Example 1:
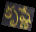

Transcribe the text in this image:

కృష్ణే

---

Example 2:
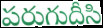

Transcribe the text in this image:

పరుగుదీసి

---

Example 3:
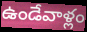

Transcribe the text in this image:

ఉండేవాళ్లం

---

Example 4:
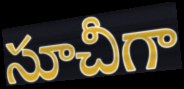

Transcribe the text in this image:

సూచీగా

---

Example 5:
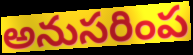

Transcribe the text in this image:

అనుసరింప